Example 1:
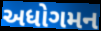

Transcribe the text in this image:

અધોગમન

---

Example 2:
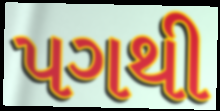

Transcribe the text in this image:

પગથી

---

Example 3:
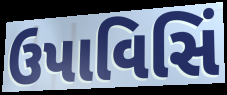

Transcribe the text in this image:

ઉપાવિસિં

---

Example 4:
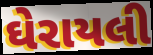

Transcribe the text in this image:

ઘેરાયલી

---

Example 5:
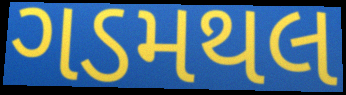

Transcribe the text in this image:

ગડમથલ